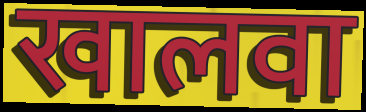
खालवा